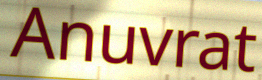
Anuvrat